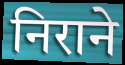
निराने